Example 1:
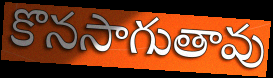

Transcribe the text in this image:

కొనసాగుతావు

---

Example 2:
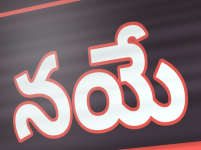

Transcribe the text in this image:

నయే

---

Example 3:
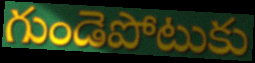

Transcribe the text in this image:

గుండెపోటుకు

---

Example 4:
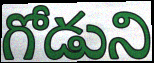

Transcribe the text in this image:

గోడుని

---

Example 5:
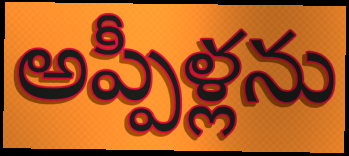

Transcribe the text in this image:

అప్పీళ్లను